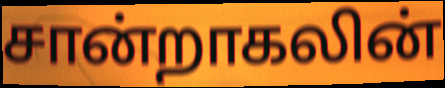
சான்றாகலின்